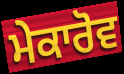
ਮੇਕਾਰੋਵ